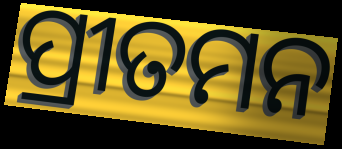
ପ୍ରୀତମନ